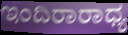
ಇಂದಿರಾರಾಧ್ಯ